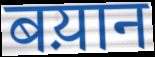
बय़ान